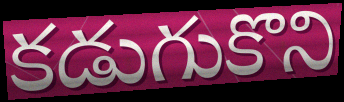
కడుగుకొని